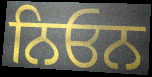
ਨਿਓਨ